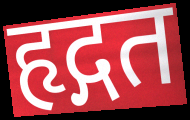
हृद्गत